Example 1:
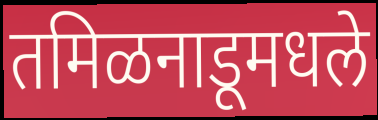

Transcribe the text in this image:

तमिळनाडूमधले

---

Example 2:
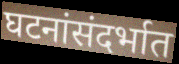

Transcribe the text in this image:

घटनांसंदर्भात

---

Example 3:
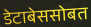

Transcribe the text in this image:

डेटाबेससोबत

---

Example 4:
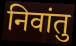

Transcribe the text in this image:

निवांतु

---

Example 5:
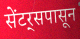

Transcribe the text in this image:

सेंटर्सपासून